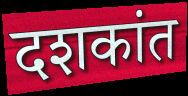
दशकांत